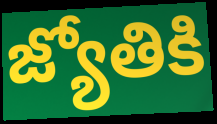
జ్యోతికి